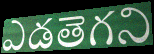
ఎడతెగని